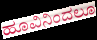
ಹೂವಿನಿಂದಲೂ